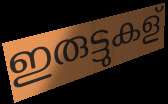
ഇരുട്ടുകള്